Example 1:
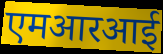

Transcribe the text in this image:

एमआरआई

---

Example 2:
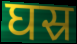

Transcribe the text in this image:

घस्र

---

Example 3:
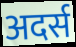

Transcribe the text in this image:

अदर्स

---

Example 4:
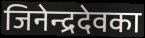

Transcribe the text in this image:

जिनेन्द्रदेवका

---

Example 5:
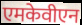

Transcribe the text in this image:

एमकेवीएन